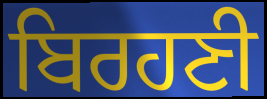
ਬਿਰਹਣੀ